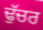
ਢੁੱਚਰ